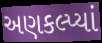
અણકલ્પ્યાં